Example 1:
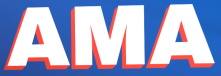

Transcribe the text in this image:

AMA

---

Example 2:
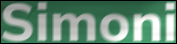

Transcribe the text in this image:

Simoni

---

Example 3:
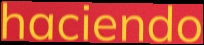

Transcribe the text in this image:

haciendo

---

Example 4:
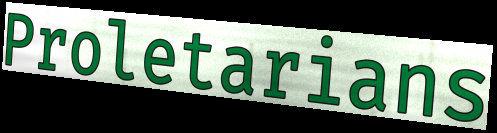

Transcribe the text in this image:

Proletarians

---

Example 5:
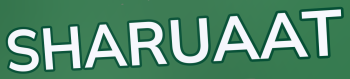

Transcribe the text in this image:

SHARUAAT